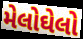
મેલોઘેલો